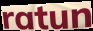
ratun